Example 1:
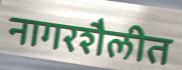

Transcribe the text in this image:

नागरशैलीत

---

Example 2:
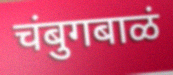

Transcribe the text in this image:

चंबुगबाळं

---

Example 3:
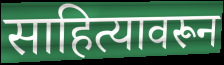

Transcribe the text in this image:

साहित्यावरून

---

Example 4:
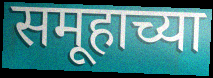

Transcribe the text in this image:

समूहाच्या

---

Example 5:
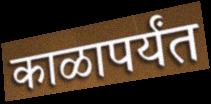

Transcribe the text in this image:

काळापर्यंत